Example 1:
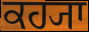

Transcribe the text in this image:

ਕਹ੍ਯਾ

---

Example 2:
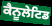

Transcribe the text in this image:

ਕੈਨੂਲੇਟਿਡ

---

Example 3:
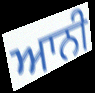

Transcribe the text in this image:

ਆਨੀ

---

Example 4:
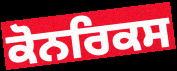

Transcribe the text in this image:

ਕੋਨਰਿਕਸ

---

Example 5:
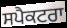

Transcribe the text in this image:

ਸਪੈਕਟਰਾ